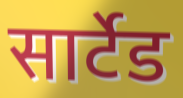
सार्टेड